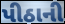
પીઠાની